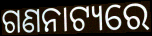
ଗଣନାଟ୍ୟରେ